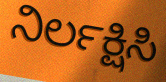
ನಿರ್ಲಕ್ಷಿಸಿ